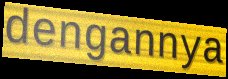
dengannya